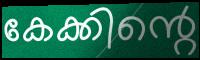
കേക്കിന്റെ